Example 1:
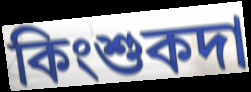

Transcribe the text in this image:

কিংশুকদা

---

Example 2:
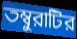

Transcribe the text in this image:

তম্বুরাটির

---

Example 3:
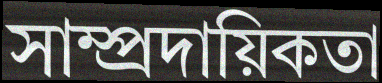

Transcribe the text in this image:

সাম্প্রদায়িকতা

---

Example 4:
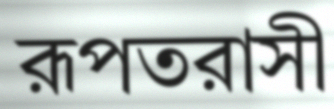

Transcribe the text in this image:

রূপতরাসী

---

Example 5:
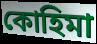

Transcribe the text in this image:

কোহিমা